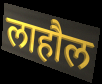
लाहौल